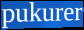
pukurer